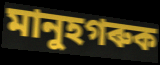
মানুহগৰুক